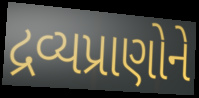
દ્રવ્યપ્રાણોને